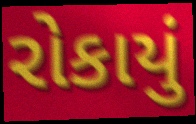
રોકાયું